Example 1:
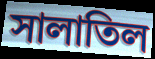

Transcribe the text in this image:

সালাতিল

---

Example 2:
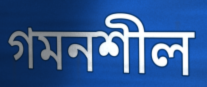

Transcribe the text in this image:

গমনশীল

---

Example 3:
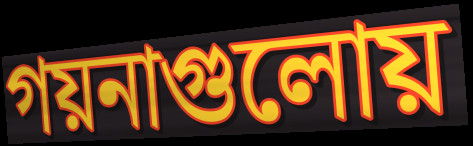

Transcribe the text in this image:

গয়নাগুলোয়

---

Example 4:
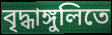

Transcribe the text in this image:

বৃদ্ধাঙ্গুলিতে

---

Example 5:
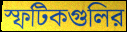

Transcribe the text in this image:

স্ফটিকগুলির